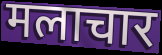
मलाचार